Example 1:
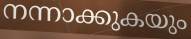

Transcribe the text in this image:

നന്നാക്കുകയും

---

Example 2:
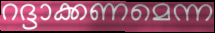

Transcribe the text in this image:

റദ്ദാക്കണമെന്ന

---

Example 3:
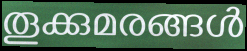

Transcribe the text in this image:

തൂക്കുമരങ്ങൾ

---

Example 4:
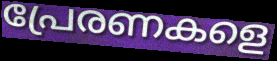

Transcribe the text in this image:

പ്രേരണകളെ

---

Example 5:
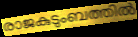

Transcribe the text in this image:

രാജകുടുംബത്തിൽ